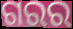
ଗରର